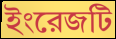
ইংরেজটি